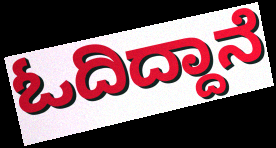
ಓದಿದ್ದಾನೆ